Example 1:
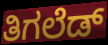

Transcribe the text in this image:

ತಿಗಲೆಡ್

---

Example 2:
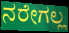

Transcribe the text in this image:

ನರೇಗಲ್ಲ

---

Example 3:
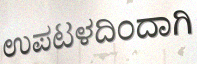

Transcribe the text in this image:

ಉಪಟಳದಿಂದಾಗಿ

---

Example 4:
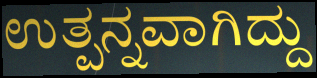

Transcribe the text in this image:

ಉತ್ಪನ್ನವಾಗಿದ್ದು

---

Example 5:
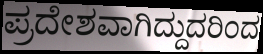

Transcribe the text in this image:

ಪ್ರದೇಶವಾಗಿದ್ದುದರಿಂದ